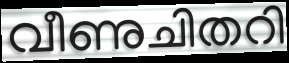
വീണുചിതറി